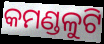
କମଣ୍ଡଳୁଟି